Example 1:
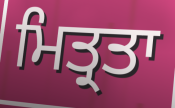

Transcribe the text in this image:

ਮਿਤ੍ਰਤਾ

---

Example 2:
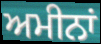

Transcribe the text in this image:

ਅਮੀਨਾਂ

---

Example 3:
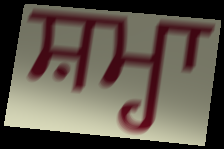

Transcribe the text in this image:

ਸ਼ਮ੍ਹਾ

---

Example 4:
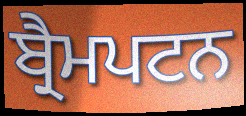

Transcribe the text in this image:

ਬ੍ਰੈਮਪਟਨ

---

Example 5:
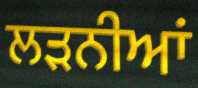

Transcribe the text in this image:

ਲੜਨੀਆਂ